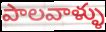
పాలవాళ్ళు